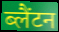
ब्लैंटन